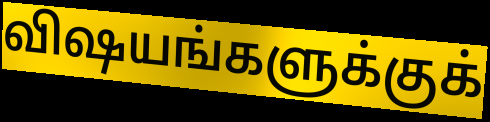
விஷயங்களுக்குக்